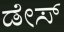
ಡೇಸ್